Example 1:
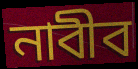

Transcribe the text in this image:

নাবীব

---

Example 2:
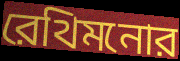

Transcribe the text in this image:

রেথিমনোর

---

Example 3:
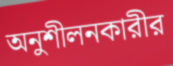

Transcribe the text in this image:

অনুশীলনকারীর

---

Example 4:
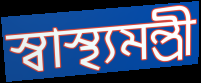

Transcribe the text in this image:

স্বাস্থ্যমন্ত্রী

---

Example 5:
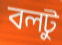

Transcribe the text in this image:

বলটু